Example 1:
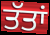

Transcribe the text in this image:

ਤੱਤਾਂ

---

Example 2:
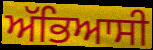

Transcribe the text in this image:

ਅੱਭਿਆਸੀ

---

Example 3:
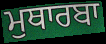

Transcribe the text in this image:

ਮੁਥਾਰਬਾ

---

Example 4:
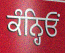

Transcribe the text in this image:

ਕੰਨ੍ਹਿਓਂ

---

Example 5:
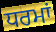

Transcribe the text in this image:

ਧਰਮਾਂ